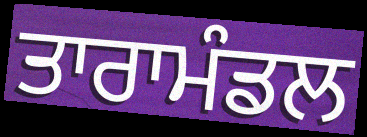
ਤਾਰਾਮੰਡਲ